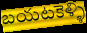
బయటకెళ్ళి